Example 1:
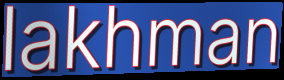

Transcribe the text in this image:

lakhman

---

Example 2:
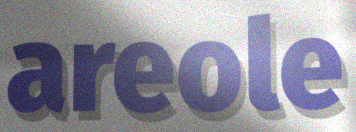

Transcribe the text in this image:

areole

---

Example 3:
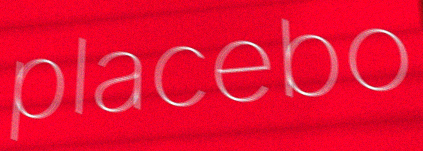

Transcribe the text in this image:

placebo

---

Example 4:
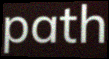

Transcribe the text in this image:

path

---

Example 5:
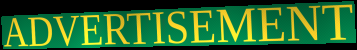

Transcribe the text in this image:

ADVERTISEMENT